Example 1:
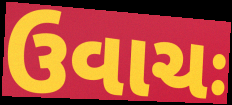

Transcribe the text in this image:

ઉવાચઃ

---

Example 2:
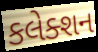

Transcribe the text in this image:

કલેક્શન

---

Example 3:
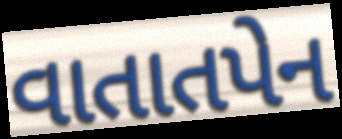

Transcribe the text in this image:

વાતાતપેન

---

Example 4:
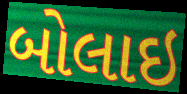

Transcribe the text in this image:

બોલાઇ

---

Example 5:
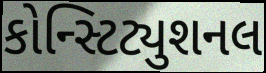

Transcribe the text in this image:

કોન્સ્ટિટ્યુશનલ